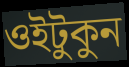
ওইটুকুন